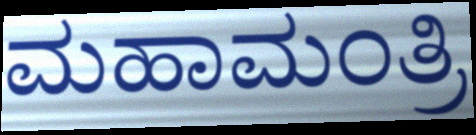
ಮಹಾಮಂತ್ರಿ